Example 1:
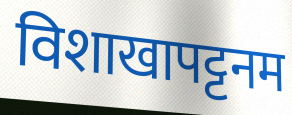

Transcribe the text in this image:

विशाखापट्टनम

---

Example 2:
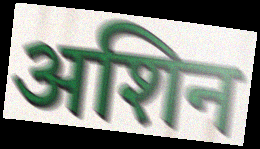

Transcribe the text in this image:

अशिन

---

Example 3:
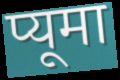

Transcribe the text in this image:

प्यूमा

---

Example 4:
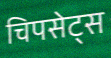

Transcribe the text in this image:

चिपसेट्स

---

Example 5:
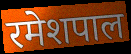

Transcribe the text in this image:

रमेशपाल